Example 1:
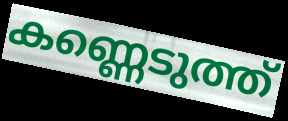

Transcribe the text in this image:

കണ്ണെടുത്ത്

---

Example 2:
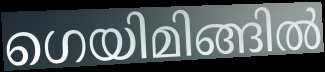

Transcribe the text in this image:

ഗെയിമിങ്ങിൽ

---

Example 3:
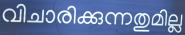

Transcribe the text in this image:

വിചാരിക്കുന്നതുമില്ല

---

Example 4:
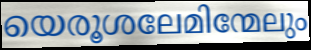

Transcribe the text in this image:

യെരൂശലേമിന്മേലും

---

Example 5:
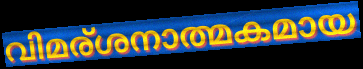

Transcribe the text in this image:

വിമര്ശനാത്മകമായ